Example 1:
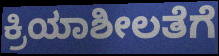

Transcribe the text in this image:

ಕ್ರಿಯಾಶೀಲತೆಗೆ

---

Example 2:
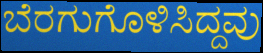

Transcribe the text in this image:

ಬೆರಗುಗೊಳಿಸಿದ್ದವು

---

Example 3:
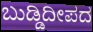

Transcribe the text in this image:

ಬುಡ್ಡಿದೀಪದ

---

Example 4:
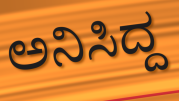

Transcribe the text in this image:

ಅನಿಸಿದ್ದ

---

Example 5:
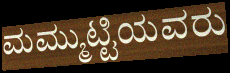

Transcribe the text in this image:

ಮಮ್ಮುಟ್ಟಿಯವರು